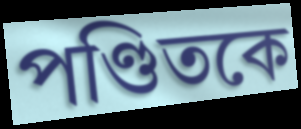
পণ্ডিতকে